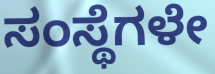
ಸಂಸ್ಥೆಗಳೇ